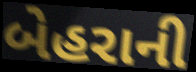
બેહરાની